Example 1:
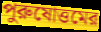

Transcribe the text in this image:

পুরুষোত্তমের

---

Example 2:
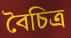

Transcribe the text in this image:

বৈচিত্র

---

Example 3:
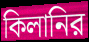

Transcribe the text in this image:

কিলানির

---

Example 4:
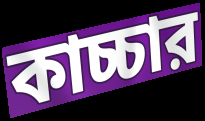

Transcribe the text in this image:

কাচ্চার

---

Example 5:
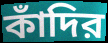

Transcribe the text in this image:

কাঁদির